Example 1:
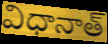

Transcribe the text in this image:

విధానాత్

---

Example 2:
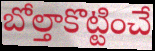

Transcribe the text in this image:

బోల్తాకొట్టించే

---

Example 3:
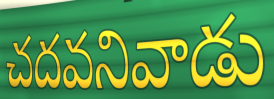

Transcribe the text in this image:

చదవనివాడు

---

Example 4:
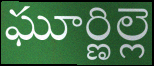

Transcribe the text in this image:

ఘూర్ణిల్లె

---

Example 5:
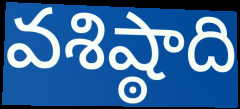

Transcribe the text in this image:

వశిష్ఠాది